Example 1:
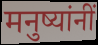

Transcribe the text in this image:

मनुष्यांनीं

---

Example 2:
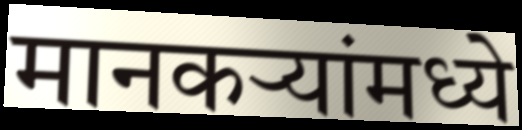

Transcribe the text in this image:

मानकऱ्यांमध्ये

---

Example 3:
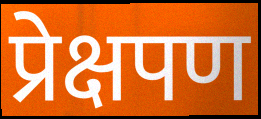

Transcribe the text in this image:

प्रेक्षपण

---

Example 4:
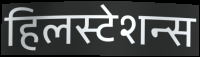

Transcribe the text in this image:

हिलस्टेशन्स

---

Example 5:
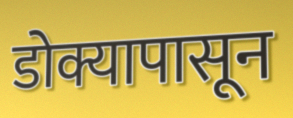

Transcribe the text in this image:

डोक्यापासून